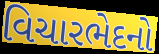
વિચારભેદનો